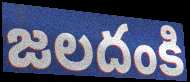
జలదంకి